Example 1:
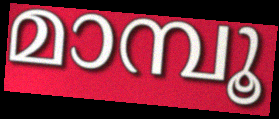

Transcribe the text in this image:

മാമ്പൂ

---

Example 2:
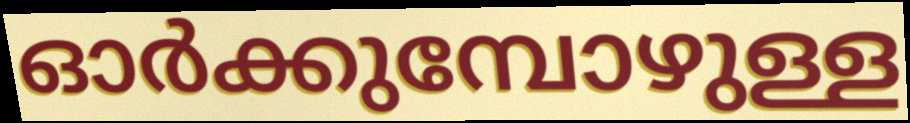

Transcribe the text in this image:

ഓർക്കുമ്പോഴുള്ള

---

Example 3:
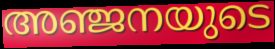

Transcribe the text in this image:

അഞ്ജനയുടെ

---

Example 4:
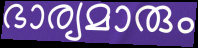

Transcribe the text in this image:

ഭാര്യമാരും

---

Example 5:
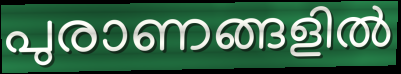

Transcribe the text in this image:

പുരാണങ്ങളിൽ